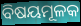
ବିଷୟମୂଳକ